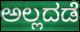
ಅಲ್ಲದಡೆ